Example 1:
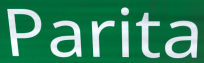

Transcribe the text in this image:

Parita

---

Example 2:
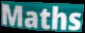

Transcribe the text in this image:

Maths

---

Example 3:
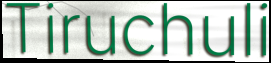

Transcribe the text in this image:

Tiruchuli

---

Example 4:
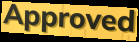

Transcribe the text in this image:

Approved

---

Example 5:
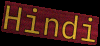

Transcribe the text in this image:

Hindi